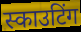
स्काउटिंग